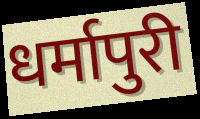
धर्मापुरी